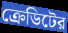
ক্রেডিটের